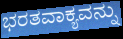
ಭರತವಾಕ್ಯವನ್ನು